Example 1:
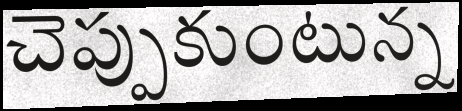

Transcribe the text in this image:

చెప్పుకుంటున్న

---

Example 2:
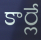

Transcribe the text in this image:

కార్లే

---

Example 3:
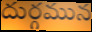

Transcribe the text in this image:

దుర్గమున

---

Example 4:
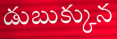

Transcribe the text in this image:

డుబుక్కున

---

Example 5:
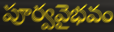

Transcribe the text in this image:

పూర్వవైభవం